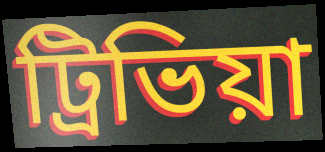
ট্রিভিয়া